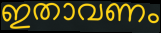
ഇതാവണം